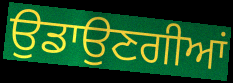
ਉਡਾਉਣਗੀਆਂ